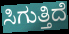
ಸಿಗುತ್ತಿದೆ